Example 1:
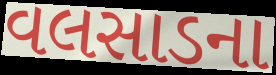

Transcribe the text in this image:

વલસાડના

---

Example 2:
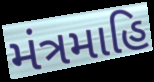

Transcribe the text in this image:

મંત્રમાહિ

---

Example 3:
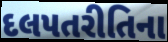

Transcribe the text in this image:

દલપતરીતિના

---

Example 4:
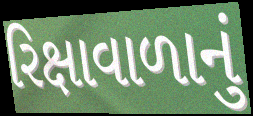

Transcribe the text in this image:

રિક્ષાવાળાનું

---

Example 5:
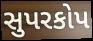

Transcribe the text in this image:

સુપરકોપ